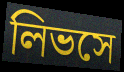
লিভসে